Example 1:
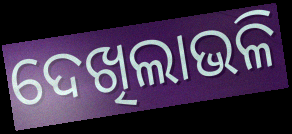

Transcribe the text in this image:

ଦେଖିଲାଭଳି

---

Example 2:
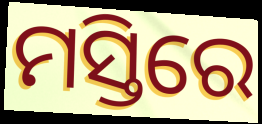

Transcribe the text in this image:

ମସ୍ତିରେ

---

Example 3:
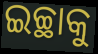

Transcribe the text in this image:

ଇଚ୍ଛାକୁ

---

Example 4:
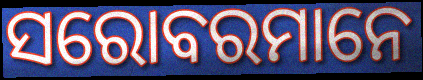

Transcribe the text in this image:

ସରୋବରମାନେ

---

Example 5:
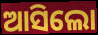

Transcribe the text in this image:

ଆସିଲୋ